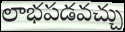
లాభపడవచ్చు